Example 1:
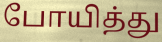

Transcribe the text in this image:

போயித்து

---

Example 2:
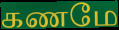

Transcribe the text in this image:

கணமே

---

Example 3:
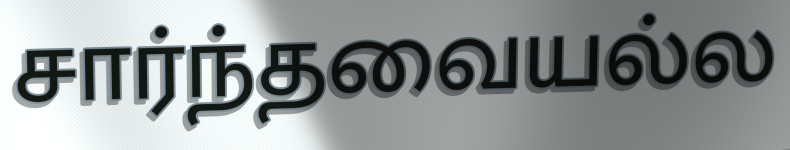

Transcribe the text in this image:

சார்ந்தவையல்ல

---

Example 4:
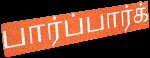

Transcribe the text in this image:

பார்ப்பார்க்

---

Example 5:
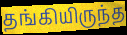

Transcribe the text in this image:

தங்கியிருந்த